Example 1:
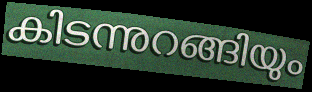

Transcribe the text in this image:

കിടന്നുറങ്ങിയും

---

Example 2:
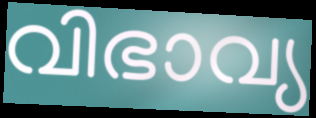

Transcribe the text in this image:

വിഭാവ്യ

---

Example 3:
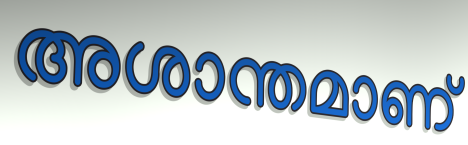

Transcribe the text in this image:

അശാന്തമാണ്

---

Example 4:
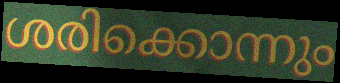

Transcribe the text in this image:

ശരിക്കൊന്നും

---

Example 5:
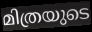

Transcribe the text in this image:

മിത്രയുടെ